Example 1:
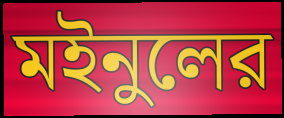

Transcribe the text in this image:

মইনুলের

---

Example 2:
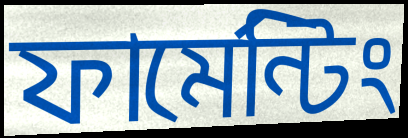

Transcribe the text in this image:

ফার্মেন্টিং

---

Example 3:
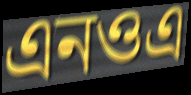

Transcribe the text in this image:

এনওএ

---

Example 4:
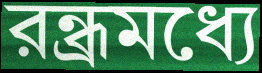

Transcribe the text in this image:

রন্ধ্রমধ্যে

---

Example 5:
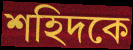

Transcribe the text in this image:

শহিদকে